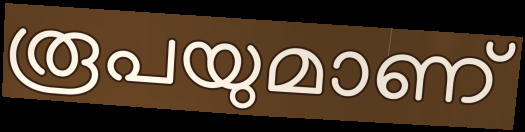
രൂപയുമാണ്